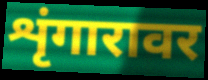
शृंगारावर